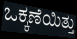
ಒಕ್ಕಣೆಯಿತ್ತು